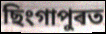
ছিংগাপুৰত